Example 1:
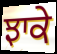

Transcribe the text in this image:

ਝਾਕੇ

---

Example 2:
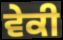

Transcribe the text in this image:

ਵੇਕੀ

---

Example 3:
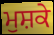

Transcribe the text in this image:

ਮੁਸ਼ਕੇ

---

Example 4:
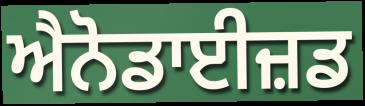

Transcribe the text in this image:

ਐਨੋਡਾਈਜ਼ਡ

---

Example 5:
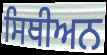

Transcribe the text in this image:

ਸਿਥੀਅਨ